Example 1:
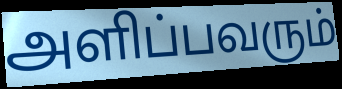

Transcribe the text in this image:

அளிப்பவரும்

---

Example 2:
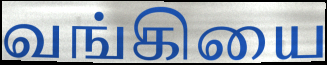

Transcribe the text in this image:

வங்கியை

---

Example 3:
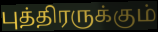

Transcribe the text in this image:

புத்திரருக்கும்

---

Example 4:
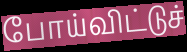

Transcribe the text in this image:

போய்விட்டுச்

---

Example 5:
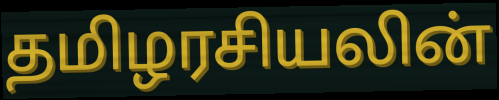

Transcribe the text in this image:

தமிழரசியலின்